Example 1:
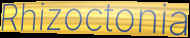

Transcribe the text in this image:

Rhizoctonia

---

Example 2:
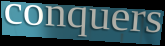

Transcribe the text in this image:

conquers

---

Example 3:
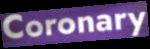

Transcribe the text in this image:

Coronary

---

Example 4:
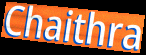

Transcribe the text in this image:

Chaithra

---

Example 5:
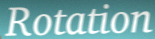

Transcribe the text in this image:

Rotation